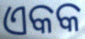
ଏକକ